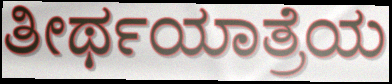
ತೀರ್ಥಯಾತ್ರೆಯ